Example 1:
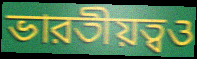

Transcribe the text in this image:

ভারতীয়ত্বও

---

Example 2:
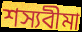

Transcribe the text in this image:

শস্যবীমা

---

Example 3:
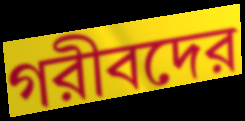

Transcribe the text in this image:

গরীবদের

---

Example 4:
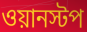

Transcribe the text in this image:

ওয়ানস্টপ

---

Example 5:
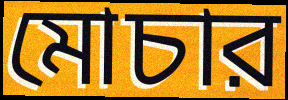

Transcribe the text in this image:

মোচার